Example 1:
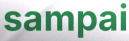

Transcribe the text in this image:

sampai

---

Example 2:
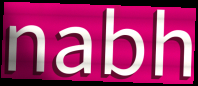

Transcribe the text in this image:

nabh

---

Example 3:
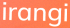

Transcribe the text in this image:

irangi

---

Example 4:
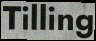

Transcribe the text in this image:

Tilling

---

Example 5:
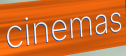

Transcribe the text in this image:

cinemas